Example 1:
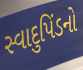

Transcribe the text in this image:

સ્વાદુપિંડનો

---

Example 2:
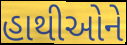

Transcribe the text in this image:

હાથીઓને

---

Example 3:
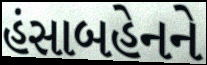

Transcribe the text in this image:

હંસાબહેનને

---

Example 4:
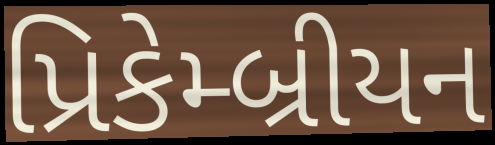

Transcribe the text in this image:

પ્રિકેમ્બ્રીયન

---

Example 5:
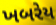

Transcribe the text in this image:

ખબરેય